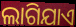
ଲାଗିଯାଏ